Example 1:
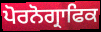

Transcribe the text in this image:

ਪੋਰਨੋਗ੍ਰਾਫਿਕ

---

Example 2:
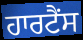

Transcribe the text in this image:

ਹਾਰਟੈਂਸ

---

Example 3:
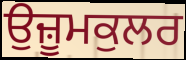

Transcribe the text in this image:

ਉਜ਼ੂਮਕੁਲਰ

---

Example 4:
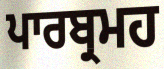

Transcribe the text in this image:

ਪਾਰਬ੍ਰਮਹ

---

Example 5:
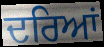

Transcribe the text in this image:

ਦਰਿਆਂ